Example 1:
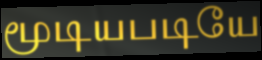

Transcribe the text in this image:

மூடியபடியே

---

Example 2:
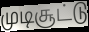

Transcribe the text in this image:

முடிசூட்டு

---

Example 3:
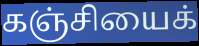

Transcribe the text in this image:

கஞ்சியைக்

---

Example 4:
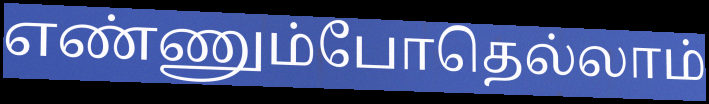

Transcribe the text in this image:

எண்ணும்போதெல்லாம்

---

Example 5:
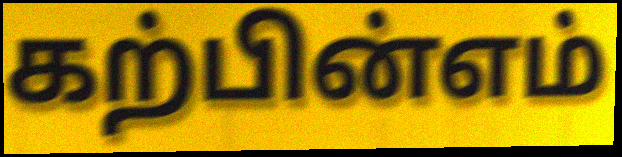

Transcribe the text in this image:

கற்பின்எம்